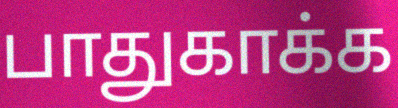
பாதுகாக்க